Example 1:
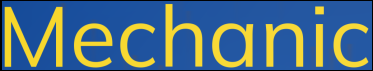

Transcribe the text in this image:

Mechanic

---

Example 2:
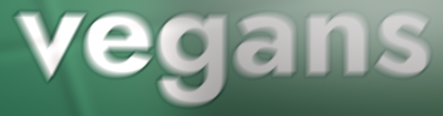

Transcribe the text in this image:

vegans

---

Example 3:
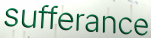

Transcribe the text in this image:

sufferance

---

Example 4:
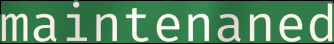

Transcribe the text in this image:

maintenaned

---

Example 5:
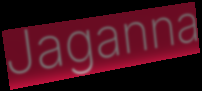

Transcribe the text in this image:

Jaganna